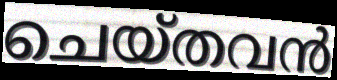
ചെയ്തവൻ